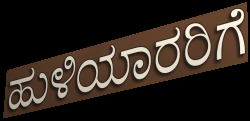
ಹುಳಿಯಾರರಿಗೆ